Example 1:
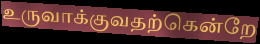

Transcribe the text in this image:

உருவாக்குவதற்கென்றே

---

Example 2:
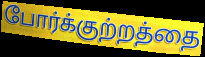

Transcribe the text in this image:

போர்க்குற்றத்தை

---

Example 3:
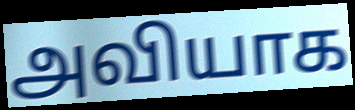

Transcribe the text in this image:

அவியாக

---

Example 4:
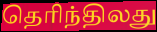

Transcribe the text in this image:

தெரிந்திலது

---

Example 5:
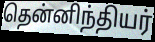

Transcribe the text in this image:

தென்னிந்தியர்